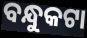
ବନ୍ଧୁକଟା